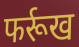
फर्रूख